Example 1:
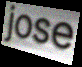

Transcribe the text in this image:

jose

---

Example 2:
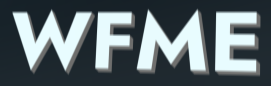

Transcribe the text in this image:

WFME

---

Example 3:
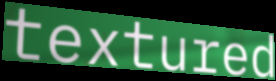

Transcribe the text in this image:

textured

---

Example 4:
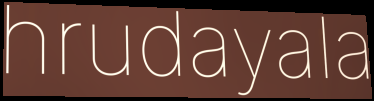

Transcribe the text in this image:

hrudayala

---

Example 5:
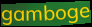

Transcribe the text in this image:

gamboge